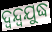
ଦ୍ୱନ୍ଦ୍ୱଯୁଦ୍ଧ